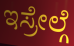
ಇಸ್ರೇಲ್ಗೆ